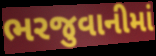
ભરજુવાનીમાં